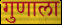
गुणाला